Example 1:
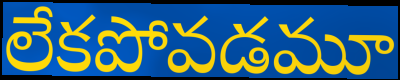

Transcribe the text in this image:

లేకపోవడమూ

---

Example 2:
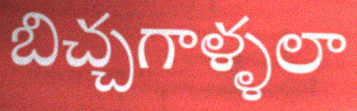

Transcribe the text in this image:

బిచ్చగాళ్ళలా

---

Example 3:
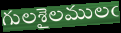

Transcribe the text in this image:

గులశైలములఁ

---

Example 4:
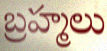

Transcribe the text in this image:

బ్రహ్మలు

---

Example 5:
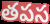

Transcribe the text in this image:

తపస